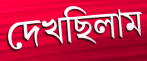
দেখছিলাম